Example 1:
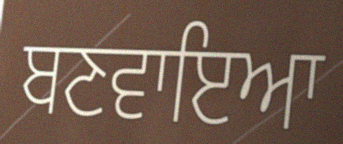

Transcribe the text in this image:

ਬਣਵਾਇਆ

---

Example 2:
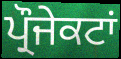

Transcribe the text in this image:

ਪ੍ਰੌਜੇਕਟਾਂ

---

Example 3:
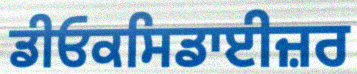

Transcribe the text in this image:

ਡੀਓਕਸਿਡਾਈਜ਼ਰ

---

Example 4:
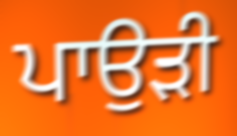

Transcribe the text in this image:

ਪਾਉੜੀ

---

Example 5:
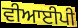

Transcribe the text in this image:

ਵੀਆਈਪੀ